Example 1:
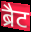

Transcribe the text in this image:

ब्रैट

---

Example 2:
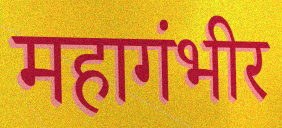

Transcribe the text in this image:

महागंभीर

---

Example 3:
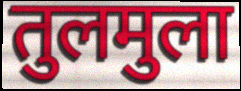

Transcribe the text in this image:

तुलमुला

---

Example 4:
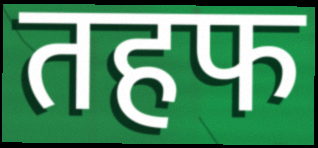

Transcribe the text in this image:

तहफ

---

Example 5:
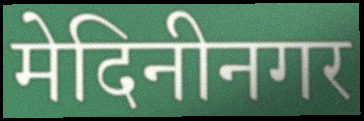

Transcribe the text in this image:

मेदिनीनगर